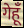
गेहूँ